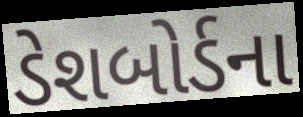
ડેશબોર્ડના